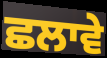
ਛਲਾਵੇ